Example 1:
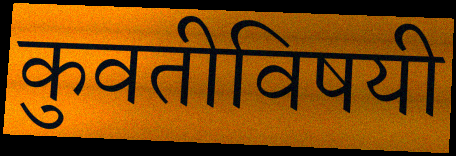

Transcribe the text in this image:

कुवतीविषयी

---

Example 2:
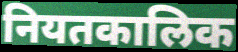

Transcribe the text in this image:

नियतकालिक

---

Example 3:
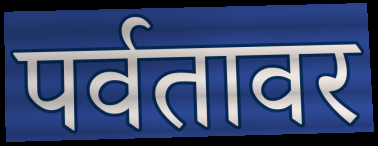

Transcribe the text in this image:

पर्वतावर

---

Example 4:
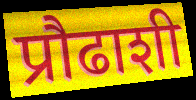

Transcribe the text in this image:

प्रौढाशी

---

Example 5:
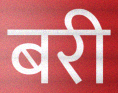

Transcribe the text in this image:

बरी